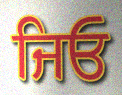
ਜਿਓ